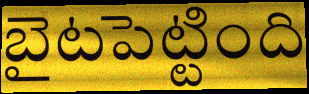
బైటపెట్టింది